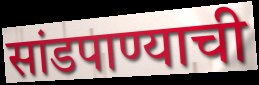
सांडपाण्याची